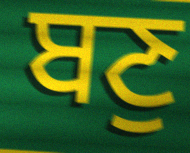
ਬਣੁ